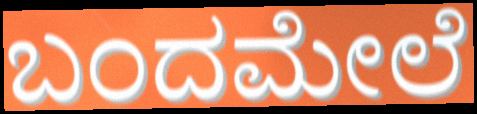
ಬಂದಮೇಲೆ